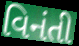
વિનંતી